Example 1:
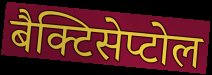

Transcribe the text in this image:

बैक्टिसेप्टोल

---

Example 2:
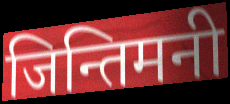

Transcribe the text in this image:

जिन्तिमनी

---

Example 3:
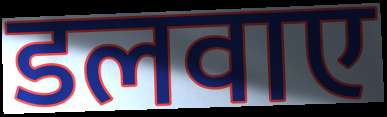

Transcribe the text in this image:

डलवाए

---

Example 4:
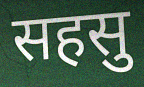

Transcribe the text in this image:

सहसु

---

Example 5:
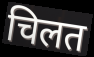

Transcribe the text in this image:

चिलत